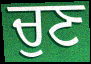
ਚੁਣ